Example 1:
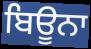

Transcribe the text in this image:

ਬਿਊਨਾ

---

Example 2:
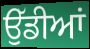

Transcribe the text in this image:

ਉੱਡੀਆਂ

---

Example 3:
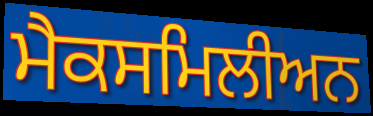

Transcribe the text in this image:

ਮੈਕਸਮਿਲੀਅਨ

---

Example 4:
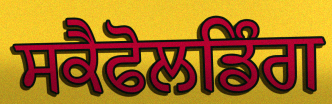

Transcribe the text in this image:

ਸਕੈਫੋਲਡਿੰਗ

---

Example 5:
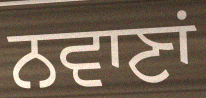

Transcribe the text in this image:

ਨਵਾਣਾਂ